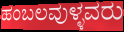
ಹಂಬಲವುಳ್ಳವರು